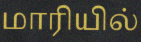
மாரியில்